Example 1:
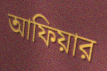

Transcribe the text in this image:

আফিয়ার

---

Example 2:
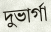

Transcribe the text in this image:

দুভার্গা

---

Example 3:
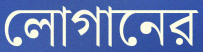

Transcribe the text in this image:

লোগানের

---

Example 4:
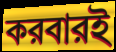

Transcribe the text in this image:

করবারই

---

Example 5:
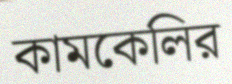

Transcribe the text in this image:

কামকেলির